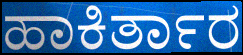
ಹಾಕಿರ್ತಾರ